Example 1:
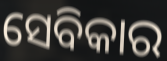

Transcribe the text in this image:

ସେବିକାର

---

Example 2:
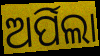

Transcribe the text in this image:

ଅର୍ପିଲା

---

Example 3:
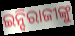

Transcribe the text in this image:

ଇନ୍ଦିରାଜୀଙ୍କୁ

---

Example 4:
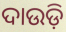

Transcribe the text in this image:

ଦାଉଡ଼ି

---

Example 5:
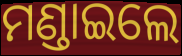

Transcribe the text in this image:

ମଣ୍ଡାଇଲେ